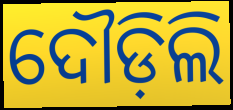
ଦୌଡ଼ିଲି